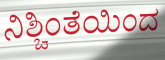
ನಿಶ್ಚಿಂತೆಯಿಂದ